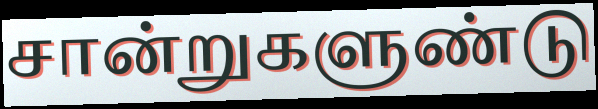
சான்றுகளுண்டு